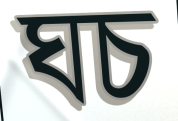
ঘচ